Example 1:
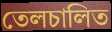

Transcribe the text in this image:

তেলচালিত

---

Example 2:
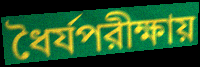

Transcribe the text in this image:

ধৈর্যপরীক্ষায়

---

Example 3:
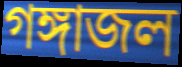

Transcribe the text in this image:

গঙ্গাজল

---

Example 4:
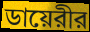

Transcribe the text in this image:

ডায়েরীর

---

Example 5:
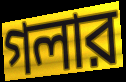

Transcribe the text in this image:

গলার